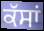
ਕੱਸਾਂ